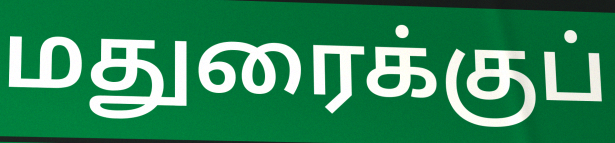
மதுரைக்குப்